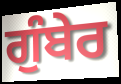
ਗੁੰਬੇਰ